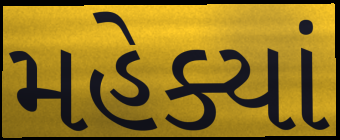
મહેક્યાં